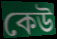
কেউ